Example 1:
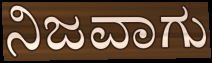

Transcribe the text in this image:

ನಿಜವಾಗು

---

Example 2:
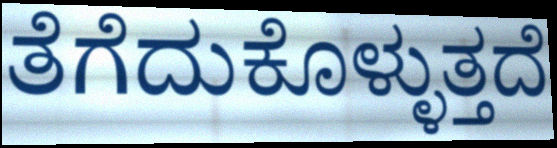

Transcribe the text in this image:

ತೆಗೆದುಕೊಳ್ಳುತ್ತದೆ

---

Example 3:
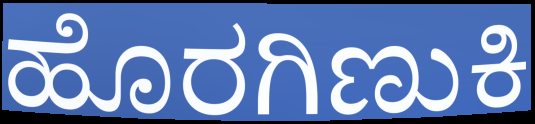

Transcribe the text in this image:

ಹೊರಗಿಣುಕಿ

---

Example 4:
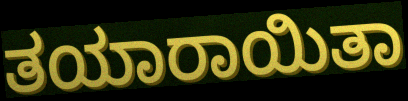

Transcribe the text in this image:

ತಯಾರಾಯಿತಾ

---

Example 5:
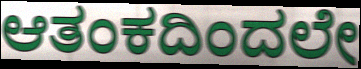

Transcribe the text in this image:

ಆತಂಕದಿಂದಲೇ